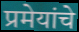
प्रमेयांचे